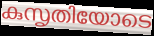
കുസൃതിയോടെ